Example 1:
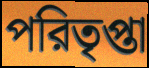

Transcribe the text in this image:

পরিতৃপ্তা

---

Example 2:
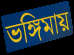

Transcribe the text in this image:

ভঙ্গিমায়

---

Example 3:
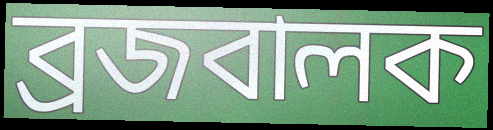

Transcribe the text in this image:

ব্রজবালক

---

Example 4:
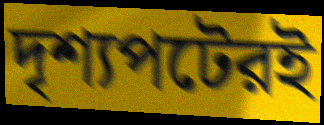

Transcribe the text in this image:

দৃশ্যপটেরই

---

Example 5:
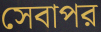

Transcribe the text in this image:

সেবাপর